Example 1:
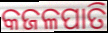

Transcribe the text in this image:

କଜଳପାତି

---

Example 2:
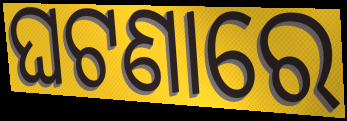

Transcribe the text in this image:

ଘଟଣାରେ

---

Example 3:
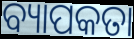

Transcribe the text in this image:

ବ୍ୟାପକତା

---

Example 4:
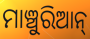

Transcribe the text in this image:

ମାଞ୍ଚୁରିଆନ୍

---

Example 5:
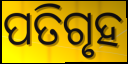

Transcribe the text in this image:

ପତିଗୃହ